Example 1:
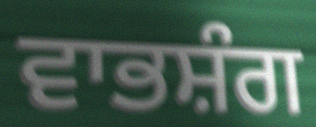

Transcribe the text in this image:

ਵਾਭਸ਼ੰਗ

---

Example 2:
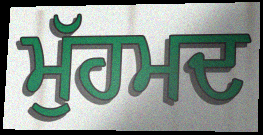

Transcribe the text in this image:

ਮੁੱਹਮਦ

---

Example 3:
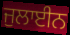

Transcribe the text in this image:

ਜੁਲਾਈਨ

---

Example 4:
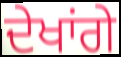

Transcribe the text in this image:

ਦੇਖਾਂਗੇ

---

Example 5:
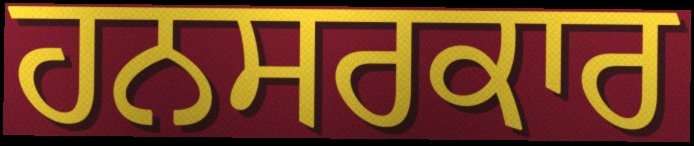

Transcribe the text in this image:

ਹਨਸਰਕਾਰ